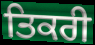
ਤਿਕਰੀ